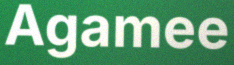
Agamee